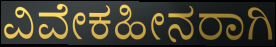
ವಿವೇಕಹೀನರಾಗಿ